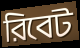
রিবেট